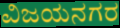
ವಿಜಯನಗರ